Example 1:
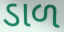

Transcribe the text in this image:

ડાળ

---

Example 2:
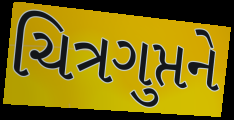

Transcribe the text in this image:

ચિત્રગુપ્તને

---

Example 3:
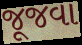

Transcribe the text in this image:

જૂજવા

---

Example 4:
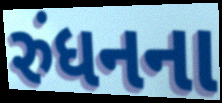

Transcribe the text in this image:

રુંધનના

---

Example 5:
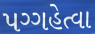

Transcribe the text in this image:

પગ્ગહેત્વા